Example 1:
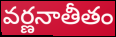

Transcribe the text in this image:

వర్ణనాతీతం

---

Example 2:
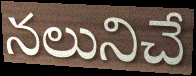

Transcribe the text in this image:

నలునిచే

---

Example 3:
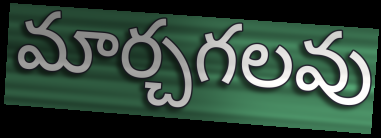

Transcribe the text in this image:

మార్చగలవు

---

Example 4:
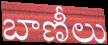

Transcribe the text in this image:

బాణీలు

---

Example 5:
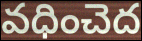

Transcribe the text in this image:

వధించెద